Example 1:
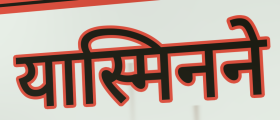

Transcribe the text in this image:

यास्मिनने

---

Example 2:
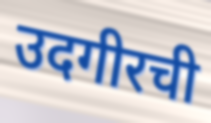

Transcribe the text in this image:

उदगीरची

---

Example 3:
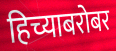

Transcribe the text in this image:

हिच्याबरोबर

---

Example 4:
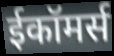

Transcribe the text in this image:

ईकॉमर्स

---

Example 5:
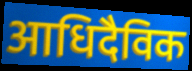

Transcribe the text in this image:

आधिदैविक